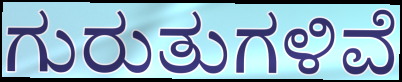
ಗುರುತುಗಳಿವೆ